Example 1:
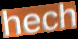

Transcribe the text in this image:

hech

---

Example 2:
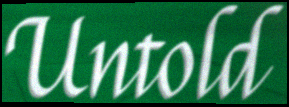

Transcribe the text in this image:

Untold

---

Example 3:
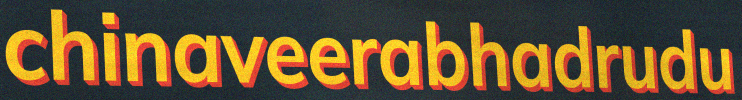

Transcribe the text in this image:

chinaveerabhadrudu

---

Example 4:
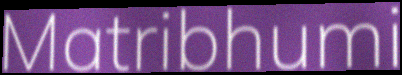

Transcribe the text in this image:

Matribhumi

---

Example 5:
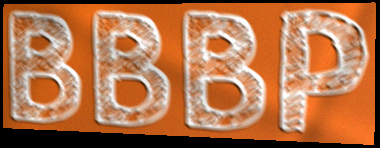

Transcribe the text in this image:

BBBP